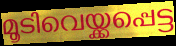
മൂടിവെയ്ക്കപ്പെട്ട